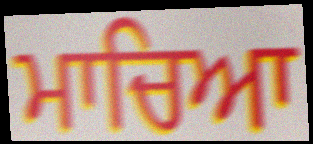
ਮਾਚਿਆ